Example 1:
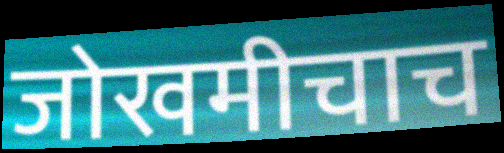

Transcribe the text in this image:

जोखमीचाच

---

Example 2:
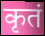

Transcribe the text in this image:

कृतं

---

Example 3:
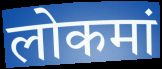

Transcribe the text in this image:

लोकमां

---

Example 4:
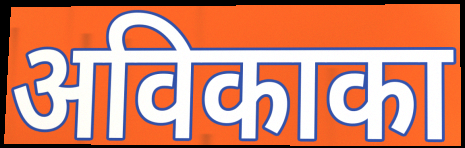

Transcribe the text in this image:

अविकाका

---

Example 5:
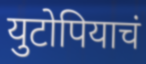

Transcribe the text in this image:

युटोपियाचं